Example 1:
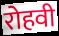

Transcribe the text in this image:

रोहवी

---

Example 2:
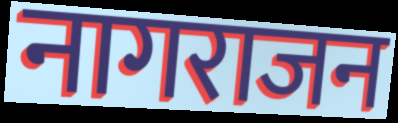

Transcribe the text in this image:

नागराजन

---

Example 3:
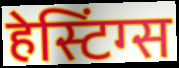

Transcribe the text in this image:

हेस्टिंग्स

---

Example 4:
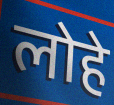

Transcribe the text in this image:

लोहे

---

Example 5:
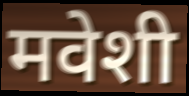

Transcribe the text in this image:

मवेशी